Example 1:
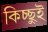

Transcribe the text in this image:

কিচ্ছুই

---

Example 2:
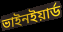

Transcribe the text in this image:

ভাইনইয়ার্ড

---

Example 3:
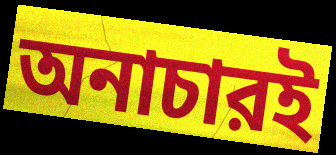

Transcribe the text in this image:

অনাচারই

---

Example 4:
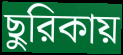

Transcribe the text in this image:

ছুরিকায়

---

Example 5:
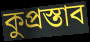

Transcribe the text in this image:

কুপ্রস্তাব